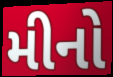
મીનો